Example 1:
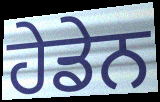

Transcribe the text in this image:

ਹੇਡੇਨ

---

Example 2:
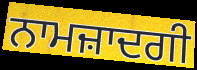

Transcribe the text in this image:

ਨਾਮਜ਼ਾਦਗੀ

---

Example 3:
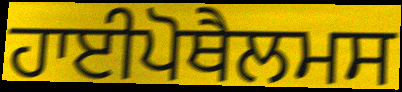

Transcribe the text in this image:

ਹਾਈਪੋਥੈਲਮਸ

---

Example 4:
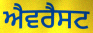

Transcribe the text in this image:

ਐਵਰੈਸਟ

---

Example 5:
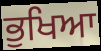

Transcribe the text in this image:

ਭੁਖਿਆ